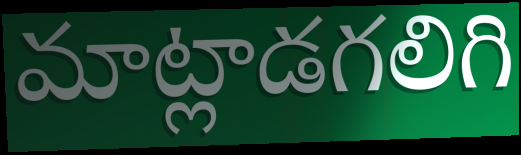
మాట్లాడగలిగి